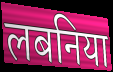
लबनिया